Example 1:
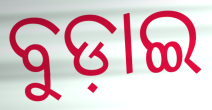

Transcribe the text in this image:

ବୁଡ଼ାଇ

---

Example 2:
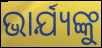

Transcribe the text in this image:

ଭାର୍ଯ୍ୟଙ୍କୁ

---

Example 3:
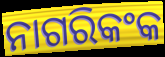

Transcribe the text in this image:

ନାଗରିକଂକ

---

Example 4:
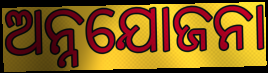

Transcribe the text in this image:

ଅନ୍ନଯୋଜନା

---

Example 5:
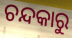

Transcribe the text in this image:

ଚନ୍ଦକାରୁ